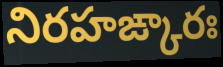
నిరహఙ్కారః